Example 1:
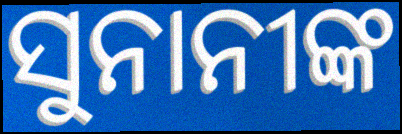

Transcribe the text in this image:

ସୁନାନୀଙ୍କ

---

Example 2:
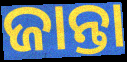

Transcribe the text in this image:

ଜାନ୍ତା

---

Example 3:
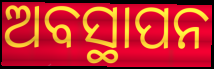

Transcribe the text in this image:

ଅବସ୍ଥାପନ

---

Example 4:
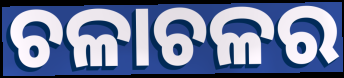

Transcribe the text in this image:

ଚଳାଚଳର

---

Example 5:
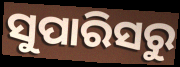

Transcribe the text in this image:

ସୁପାରିସରୁ